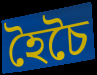
হৈচৈ